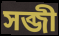
সব্জী